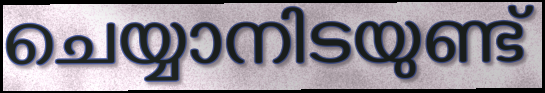
ചെയ്യാനിടയുണ്ട്